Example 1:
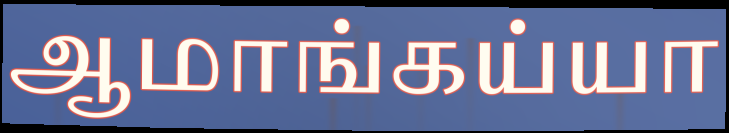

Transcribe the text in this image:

ஆமாங்கய்யா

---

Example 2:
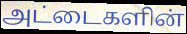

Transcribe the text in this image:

அட்டைகளின்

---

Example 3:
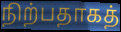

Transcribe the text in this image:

நிற்பதாகத்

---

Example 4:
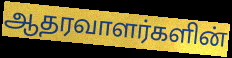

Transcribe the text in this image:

ஆதரவாளர்களின்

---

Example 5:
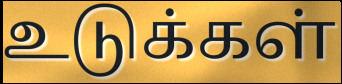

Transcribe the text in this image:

உடுக்கள்